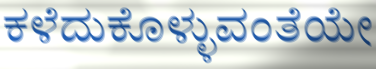
ಕಳೆದುಕೊಳ್ಳುವಂತೆಯೇ